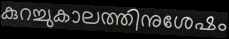
കുറച്ചുകാലത്തിനുശേഷം